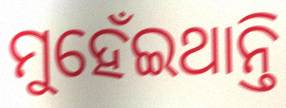
ମୁହେଁଇଥାନ୍ତି